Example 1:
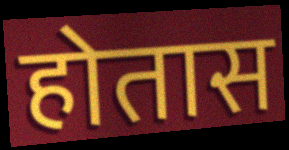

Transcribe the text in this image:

होतास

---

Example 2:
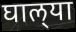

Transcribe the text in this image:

घाल्या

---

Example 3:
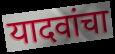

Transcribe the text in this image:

यादवांचा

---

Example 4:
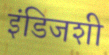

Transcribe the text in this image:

इंडिजशी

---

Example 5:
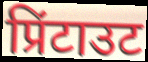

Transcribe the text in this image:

प्रिंटाउट